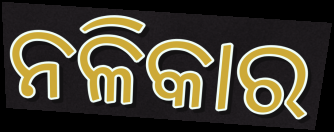
ନଳିକାର